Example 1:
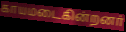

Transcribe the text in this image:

காயமடைகின்றனர்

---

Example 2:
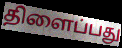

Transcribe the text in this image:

திளைப்பது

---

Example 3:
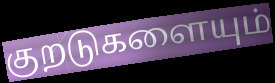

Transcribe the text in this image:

குறடுகளையும்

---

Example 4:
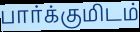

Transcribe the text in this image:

பார்க்குமிடம்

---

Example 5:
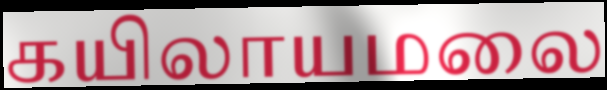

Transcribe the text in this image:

கயிலாயமலை